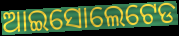
ଆଇସୋଲେଟେଡ